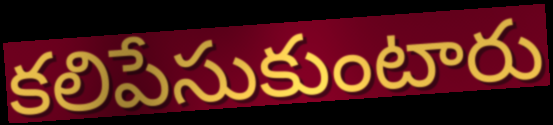
కలిపేసుకుంటారు